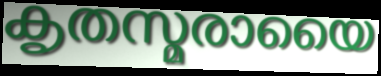
കൃതസ്മരായൈ